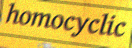
homocyclic